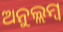
ଅନୁଲ୍ଲମ୍ବ